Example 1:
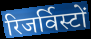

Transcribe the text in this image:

रिजर्विस्टों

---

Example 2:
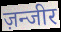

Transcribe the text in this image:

ज़न्जीर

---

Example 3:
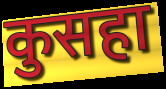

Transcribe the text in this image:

कुसहा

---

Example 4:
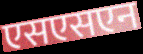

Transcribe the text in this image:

एसएसएन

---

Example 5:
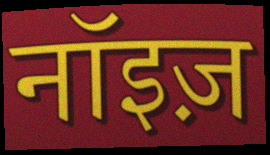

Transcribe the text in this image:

नॉइज़